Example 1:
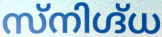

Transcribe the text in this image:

സ്നിഗ്ദ്ധ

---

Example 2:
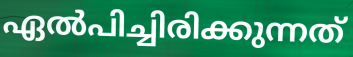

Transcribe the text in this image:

ഏൽപിച്ചിരിക്കുന്നത്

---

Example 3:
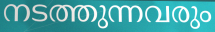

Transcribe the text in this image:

നടത്തുന്നവരും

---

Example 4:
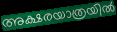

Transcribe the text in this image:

അക്ഷരയാത്രയിൽ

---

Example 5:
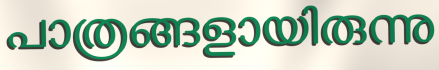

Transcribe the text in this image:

പാത്രങ്ങളായിരുന്നു